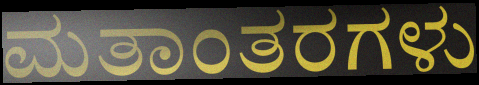
ಮತಾಂತರಗಳು